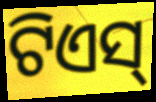
ଟିଏସ୍